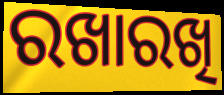
ରଖାରଖି